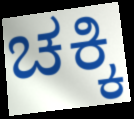
ಚಕ್ಕಿ